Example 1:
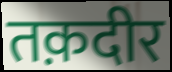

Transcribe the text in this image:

तक़दीर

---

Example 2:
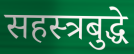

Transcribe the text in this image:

सहस्त्रबुद्धे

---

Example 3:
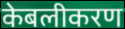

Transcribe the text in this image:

केबलीकरण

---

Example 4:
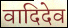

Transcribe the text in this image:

वादिदेव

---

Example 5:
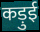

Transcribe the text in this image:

कड़ुई